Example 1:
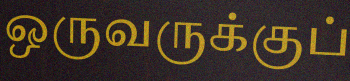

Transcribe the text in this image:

ஒருவருக்குப்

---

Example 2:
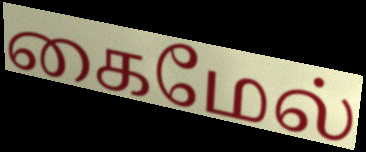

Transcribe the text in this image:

கைமேல்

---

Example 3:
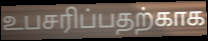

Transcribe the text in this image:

உபசரிப்பதற்காக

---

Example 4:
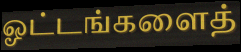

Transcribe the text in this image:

ஓட்டங்களைத்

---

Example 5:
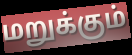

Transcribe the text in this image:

மறுக்கும்